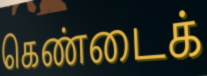
கெண்டைக்